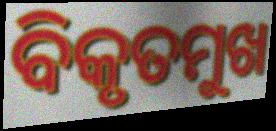
ବିକୃତମୁଖ